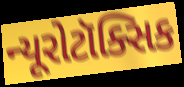
ન્યૂરોટૉક્સિક